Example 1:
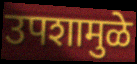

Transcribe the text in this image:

उपशामुळे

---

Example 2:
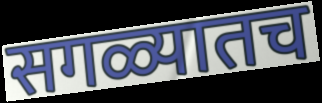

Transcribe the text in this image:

सगळ्यातच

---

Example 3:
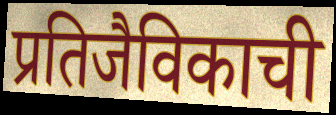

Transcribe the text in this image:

प्रतिजैविकाची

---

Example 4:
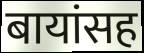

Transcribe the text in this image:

बायांसह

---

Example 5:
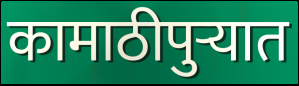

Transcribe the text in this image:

कामाठीपुर्‍यात